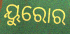
ୟୁରୋର